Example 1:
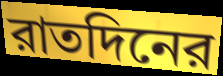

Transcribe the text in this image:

রাতদিনের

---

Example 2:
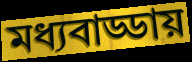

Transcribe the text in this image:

মধ্যবাড্ডায়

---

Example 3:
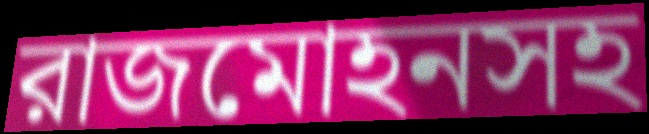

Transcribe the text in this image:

রাজমোহনসহ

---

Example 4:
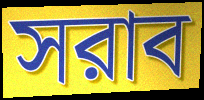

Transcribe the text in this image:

সরাব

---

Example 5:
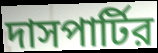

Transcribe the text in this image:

দাসপার্টির